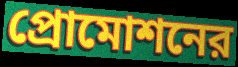
প্রোমোশনের